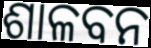
ଶାଳବନ